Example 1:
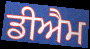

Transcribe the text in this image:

ਡੀਐਮ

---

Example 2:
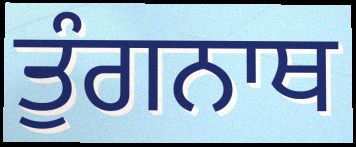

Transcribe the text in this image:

ਤੁੰਗਨਾਥ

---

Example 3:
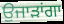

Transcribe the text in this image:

ਉਜਾੜਾਂਗਾ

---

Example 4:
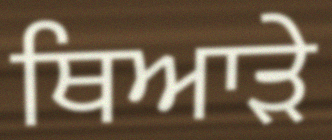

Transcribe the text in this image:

ਥਿਆੜੇ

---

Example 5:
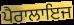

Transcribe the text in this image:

ਪੈਰਾਲਾਇਜ